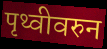
पृथ्वीवरुन